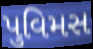
પુવિમસ